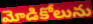
మోడికోలును